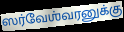
ஸர்வேஶ்வரனுக்கு